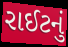
રાઈટનું